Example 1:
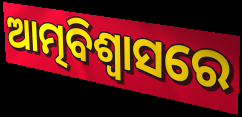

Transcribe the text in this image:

ଆତ୍ମବିଶ୍ଵାସରେ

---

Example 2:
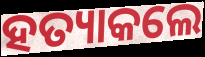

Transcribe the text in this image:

ହତ୍ୟାକଲେ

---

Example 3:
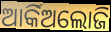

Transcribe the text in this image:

ଆର୍କିଅଲୋଜି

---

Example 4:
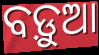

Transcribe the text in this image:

ବଡ଼ୁଆ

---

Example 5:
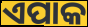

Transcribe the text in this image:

ଏପାକ